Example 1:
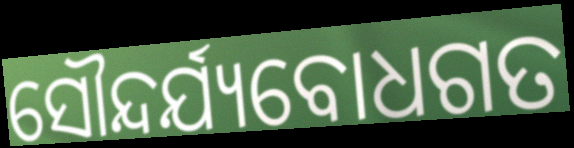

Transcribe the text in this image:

ସୌନ୍ଦର୍ଯ୍ୟବୋଧଗତ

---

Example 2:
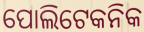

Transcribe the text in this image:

ପୋଲିଟେକନିକ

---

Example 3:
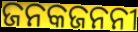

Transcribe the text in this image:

ଜନକଜନନୀ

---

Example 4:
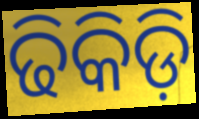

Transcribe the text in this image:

ଢିକିଡ଼ି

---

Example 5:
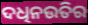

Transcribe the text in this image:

ଦଧିନଉତିର